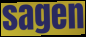
sagen